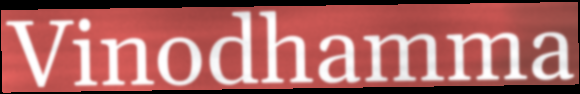
Vinodhamma